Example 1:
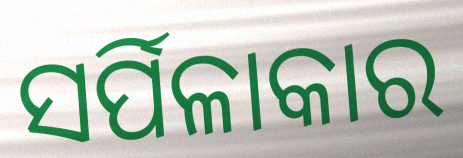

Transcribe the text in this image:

ସର୍ପିଳାକାର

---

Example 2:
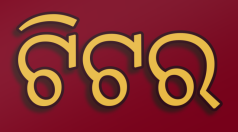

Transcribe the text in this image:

ଟିଟର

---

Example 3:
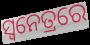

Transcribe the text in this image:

ସ୍ୱନେତ୍ରରେ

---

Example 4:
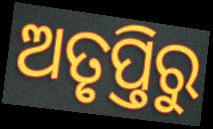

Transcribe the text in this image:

ଅତୃପ୍ତିରୁ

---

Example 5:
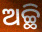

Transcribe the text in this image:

ଅଚ୍ଛି